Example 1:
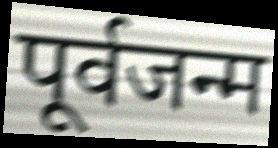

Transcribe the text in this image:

पूर्वजन्म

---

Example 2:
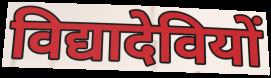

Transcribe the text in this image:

विद्यादेवियों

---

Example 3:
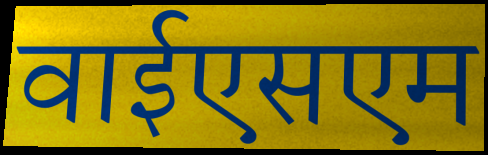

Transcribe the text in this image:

वाईएसएम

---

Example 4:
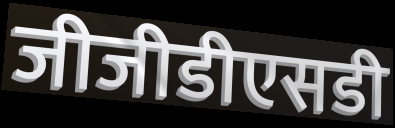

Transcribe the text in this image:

जीजीडीएसडी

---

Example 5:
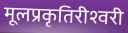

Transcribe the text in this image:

मूलप्रकृतिरीश्वरी